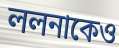
ললনাকেও